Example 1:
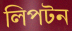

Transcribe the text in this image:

লিপটন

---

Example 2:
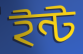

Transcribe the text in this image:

ইন্ট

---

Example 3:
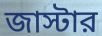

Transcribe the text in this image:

জাস্টার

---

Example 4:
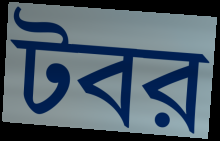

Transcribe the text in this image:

টবর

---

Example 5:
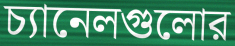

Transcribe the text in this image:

চ্যানেলগুলোর